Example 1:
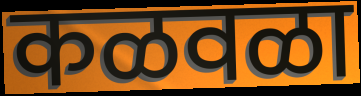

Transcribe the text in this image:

कळवळा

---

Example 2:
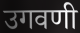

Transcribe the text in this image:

उगवणी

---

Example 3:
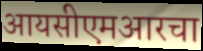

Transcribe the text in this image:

आयसीएमआरचा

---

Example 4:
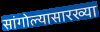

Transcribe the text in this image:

सांगोल्यासारख्या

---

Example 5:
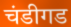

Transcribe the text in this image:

चंडीगड